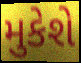
મુકેશે